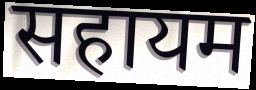
सहायम